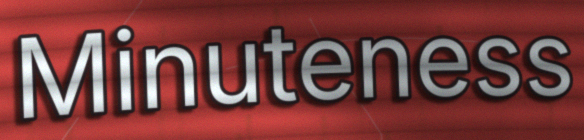
Minuteness